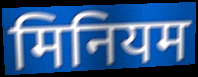
मिनियम